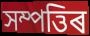
সম্পত্তিৰ